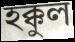
হক্কুল